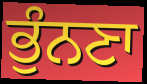
ਭੁੰਨਣਾ